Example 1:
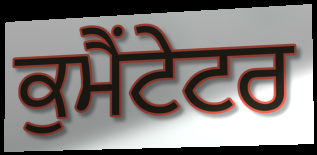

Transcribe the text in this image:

ਕੁਮੈਂਟੇਟਰ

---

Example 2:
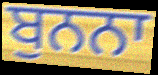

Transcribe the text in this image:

ਬੁਨਨਾ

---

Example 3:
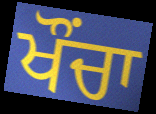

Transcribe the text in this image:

ਖੌੰਚਾ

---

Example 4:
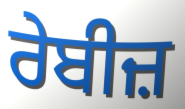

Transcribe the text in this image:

ਰੇਬੀਜ਼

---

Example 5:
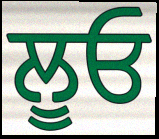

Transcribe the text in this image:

ਲੂਓ